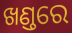
ଖଣ୍ଡରେ